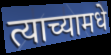
त्याच्यामधे